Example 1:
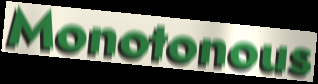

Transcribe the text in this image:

Monotonous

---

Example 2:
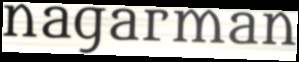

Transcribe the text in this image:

nagarman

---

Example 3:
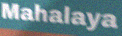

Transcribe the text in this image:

Mahalaya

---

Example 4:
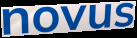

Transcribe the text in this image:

novus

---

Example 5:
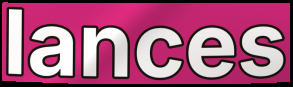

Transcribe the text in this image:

lances